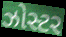
ઝોસ્ટર